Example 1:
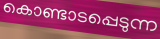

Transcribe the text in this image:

കൊണ്ടാടപ്പെടുന്ന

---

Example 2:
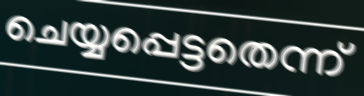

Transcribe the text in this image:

ചെയ്യപ്പെട്ടതെന്ന്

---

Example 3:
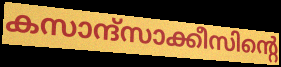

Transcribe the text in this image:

കസാന്ദ്സാക്കീസിന്റെ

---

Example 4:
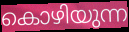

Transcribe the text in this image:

കൊഴിയുന്ന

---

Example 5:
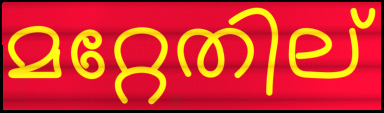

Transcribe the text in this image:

മറ്റേതില്